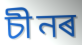
চীনৰ